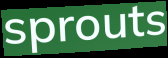
sprouts